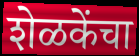
शेळकेंचा